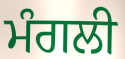
ਮੰਗਲੀ